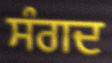
ਸੰਗਦ